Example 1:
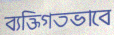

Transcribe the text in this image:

ব্যক্তিগতভাবে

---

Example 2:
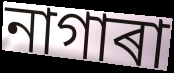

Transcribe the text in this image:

নাগাৰা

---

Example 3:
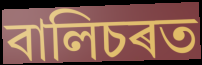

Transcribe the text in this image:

বালিচৰত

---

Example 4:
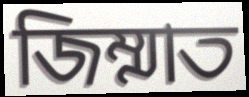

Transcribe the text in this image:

জিম্মাত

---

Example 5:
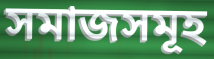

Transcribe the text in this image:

সমাজসমূহ